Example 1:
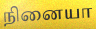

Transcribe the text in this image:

நினையா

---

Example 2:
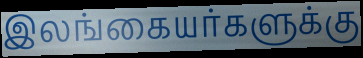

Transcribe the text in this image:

இலங்கையர்களுக்கு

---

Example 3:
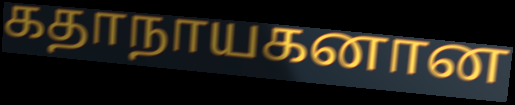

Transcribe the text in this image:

கதாநாயகனான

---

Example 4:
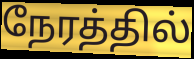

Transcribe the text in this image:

நேரத்தில்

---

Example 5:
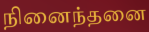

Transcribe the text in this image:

நினைந்தனை